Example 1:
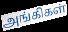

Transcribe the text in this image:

அங்கிகள்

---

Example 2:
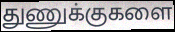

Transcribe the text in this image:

துணுக்குகளை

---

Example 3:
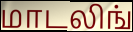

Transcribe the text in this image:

மாடலிங்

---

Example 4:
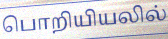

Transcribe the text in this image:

பொறியியலில்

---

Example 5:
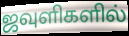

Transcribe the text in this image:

ஜவுளிகளில்